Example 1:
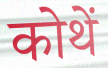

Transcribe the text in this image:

कोथें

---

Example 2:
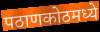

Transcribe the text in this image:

पठाणकोठमध्ये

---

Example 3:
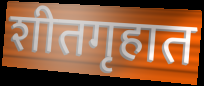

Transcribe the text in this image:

शीतगृहात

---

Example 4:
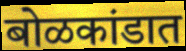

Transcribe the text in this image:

बोळकांडात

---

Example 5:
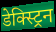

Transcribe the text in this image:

डेक्स्ट्रिन